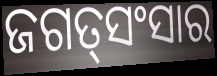
ଜଗତ୍‌ସଂସାର